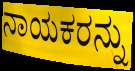
ನಾಯಕರನ್ನು